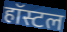
हॉस्टल